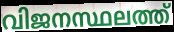
വിജനസ്ഥലത്ത്